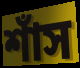
শাঁস